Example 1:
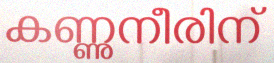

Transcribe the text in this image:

കണ്ണുനീരിന്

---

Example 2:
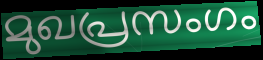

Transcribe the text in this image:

മുഖപ്രസംഗം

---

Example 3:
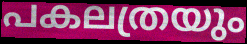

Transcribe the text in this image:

പകലത്രയും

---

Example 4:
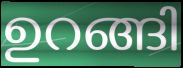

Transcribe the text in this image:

ഉറങ്ങി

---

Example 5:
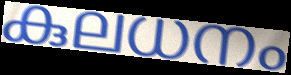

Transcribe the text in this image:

കുലധനം